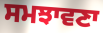
ਸਮਝਾਵਣਾ